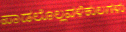
ಪಾಡಲೊಲ್ಲವಳಿಕುಲಗಳು